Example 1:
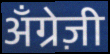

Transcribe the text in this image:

अँग्रेज़ी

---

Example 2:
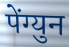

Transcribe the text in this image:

पेंग्युन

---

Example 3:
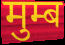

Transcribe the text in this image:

मुम्ब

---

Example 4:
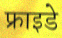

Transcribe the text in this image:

फ्राइडे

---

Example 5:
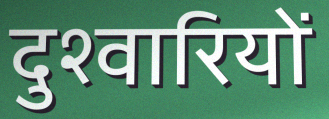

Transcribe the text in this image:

दुश्वारियों